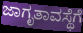
ಜಾಗೃತಾವಸ್ಥೆಗೆ